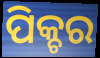
ପିକ୍ଚର